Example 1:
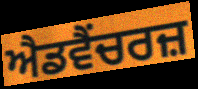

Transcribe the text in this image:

ਐਡਵੈਂਚਰਜ਼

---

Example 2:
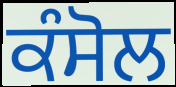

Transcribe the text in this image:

ਕੰਸੋਲ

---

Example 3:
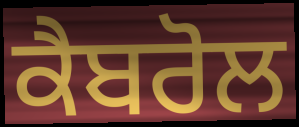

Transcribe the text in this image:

ਕੈਬਰੋਲ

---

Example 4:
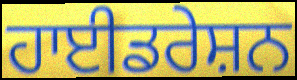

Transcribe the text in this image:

ਹਾਈਡਰੇਸ਼ਨ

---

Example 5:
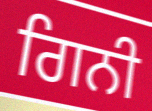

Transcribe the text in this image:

ਗਿਨੀ